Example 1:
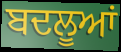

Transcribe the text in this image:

ਬਦਲੂਆਂ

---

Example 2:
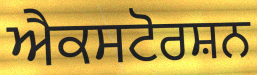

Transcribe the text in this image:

ਐਕਸਟੋਰਸ਼ਨ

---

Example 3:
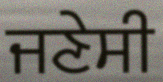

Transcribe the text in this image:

ਜਣੇਸੀ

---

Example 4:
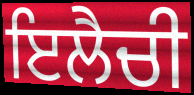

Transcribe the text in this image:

ਇਲੈਚੀ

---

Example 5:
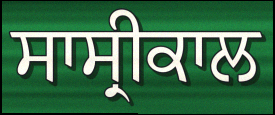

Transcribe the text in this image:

ਸਾਸ੍ਰੀਕਾਲ